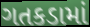
ગતકડામાં